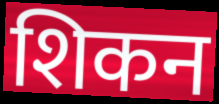
शिकन